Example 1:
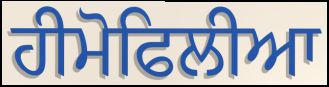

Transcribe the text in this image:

ਹੀਮੋਫਿਲੀਆ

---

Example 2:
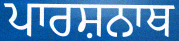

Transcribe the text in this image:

ਪਾਰਸ਼ਨਾਥ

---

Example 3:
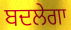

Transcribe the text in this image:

ਬਦਲੇਗਾ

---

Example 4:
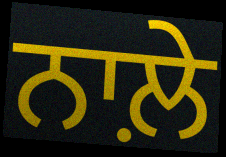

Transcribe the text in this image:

ਨਾਲ਼ੇ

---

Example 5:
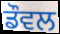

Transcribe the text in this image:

ਡੌਵਲ